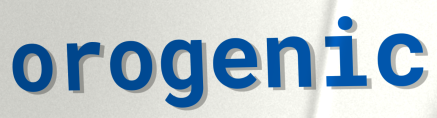
orogenic